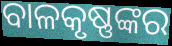
ବାଳକୃଷ୍ଣଙ୍କର